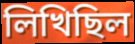
লিখিছিল